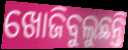
ଖୋଜିବୁଲୁଛନ୍ତି